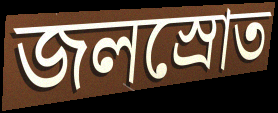
জলস্রোত